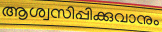
ആശ്വസിപ്പിക്കുവാനും